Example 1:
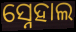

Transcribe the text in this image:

ସ୍ନେହାଲ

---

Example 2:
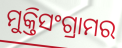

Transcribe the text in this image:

ମୁକ୍ତିସଂଗ୍ରାମର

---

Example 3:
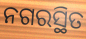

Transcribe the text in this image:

ନଗରସ୍ଥିତ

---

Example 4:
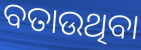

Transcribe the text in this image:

ବତାଉଥିବା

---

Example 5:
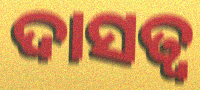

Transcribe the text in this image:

ଦାସତ୍ବ